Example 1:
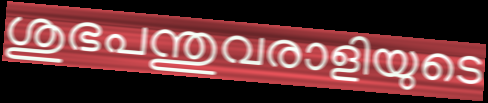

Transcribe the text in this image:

ശുഭപന്തുവരാളിയുടെ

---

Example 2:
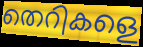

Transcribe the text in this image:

തെറികളെ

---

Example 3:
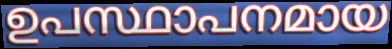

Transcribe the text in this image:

ഉപസ്ഥാപനമായ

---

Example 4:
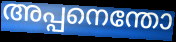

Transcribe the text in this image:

അപ്പനെന്തോ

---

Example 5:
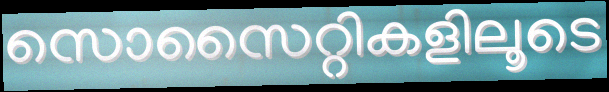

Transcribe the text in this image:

സൊസൈറ്റികളിലൂടെ